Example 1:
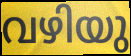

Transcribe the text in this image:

വഴിയു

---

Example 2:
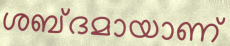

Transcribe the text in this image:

ശബ്ദമായാണ്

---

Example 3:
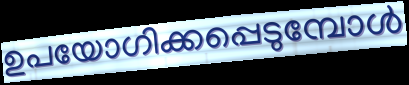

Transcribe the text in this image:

ഉപയോഗിക്കപ്പെടുമ്പോൾ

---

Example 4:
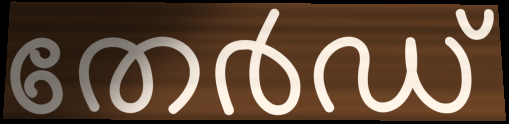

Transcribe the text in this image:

തേർഡ്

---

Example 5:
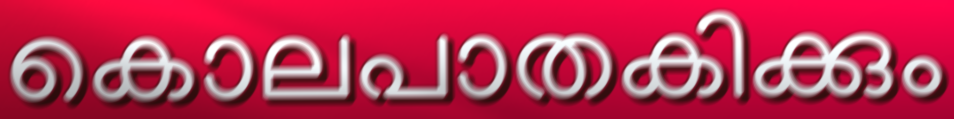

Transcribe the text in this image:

കൊലപാതകിക്കും